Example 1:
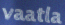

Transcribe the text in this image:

vaatla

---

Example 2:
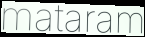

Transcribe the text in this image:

mataram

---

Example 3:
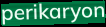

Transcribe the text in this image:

perikaryon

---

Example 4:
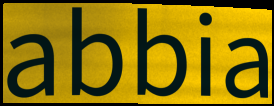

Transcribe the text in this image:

abbia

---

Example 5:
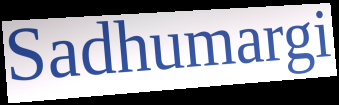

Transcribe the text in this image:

Sadhumargi